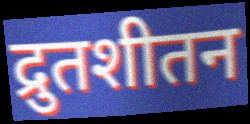
द्रुतशीतन